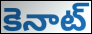
కెనాట్